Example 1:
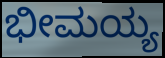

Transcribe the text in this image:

ಭೀಮಯ್ಯ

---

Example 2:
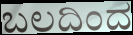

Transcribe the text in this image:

ಬಲದಿಂದ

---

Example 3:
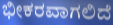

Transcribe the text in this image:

ಭೀಕರವಾಗಲಿದೆ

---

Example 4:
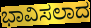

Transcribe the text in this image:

ಭಾವಿಸಲಾದ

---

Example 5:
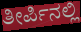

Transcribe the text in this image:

ತೀರ್ಪಿನಲ್ಲಿ